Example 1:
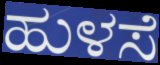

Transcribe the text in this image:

ಹುಳಸೆ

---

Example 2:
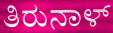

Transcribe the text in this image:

ತಿರುನಾಳ್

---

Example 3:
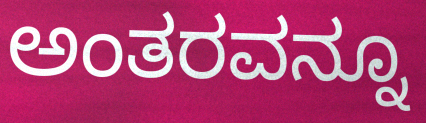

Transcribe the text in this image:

ಅಂತರವನ್ನೂ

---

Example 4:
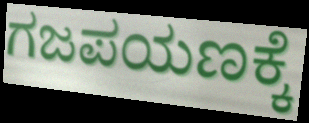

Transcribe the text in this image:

ಗಜಪಯಣಕ್ಕೆ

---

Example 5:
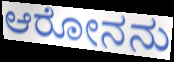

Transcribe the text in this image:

ಆರೋನನು